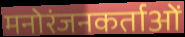
मनोरंजनकर्ताओं